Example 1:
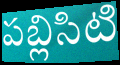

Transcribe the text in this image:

పబ్లిసిటి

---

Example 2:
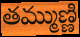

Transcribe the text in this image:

తమ్ముణ్ణి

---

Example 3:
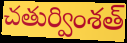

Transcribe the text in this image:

చతుర్వింశత్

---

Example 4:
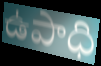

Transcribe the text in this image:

ఉపాధి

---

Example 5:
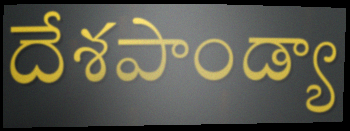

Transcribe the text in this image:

దేశపాండ్యా